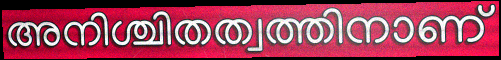
അനിശ്ചിതത്വത്തിനാണ്